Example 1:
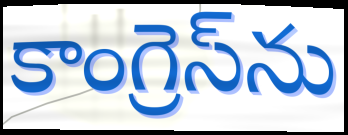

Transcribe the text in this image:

కాంగ్రెస్‌ను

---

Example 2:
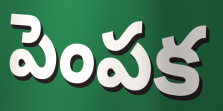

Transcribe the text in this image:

పెంపక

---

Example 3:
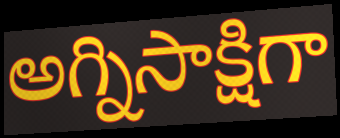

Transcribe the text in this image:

అగ్నిసాక్షిగా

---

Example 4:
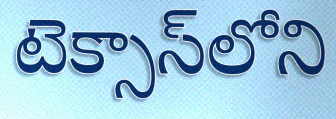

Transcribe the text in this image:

టెక్సాస్‌లోని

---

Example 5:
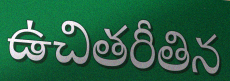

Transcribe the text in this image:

ఉచితరీతిన